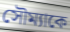
সৌম্যাকে